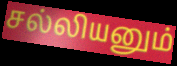
சல்லியனும்